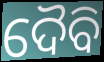
ଦୈବି